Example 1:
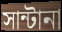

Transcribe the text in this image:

সান্টানা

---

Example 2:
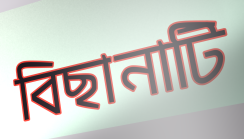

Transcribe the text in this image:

বিছানাটি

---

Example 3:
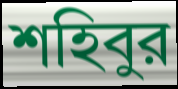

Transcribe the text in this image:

শহিবুর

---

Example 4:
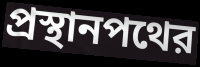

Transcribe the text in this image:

প্রস্থানপথের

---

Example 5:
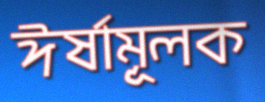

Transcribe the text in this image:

ঈর্ষামূলক